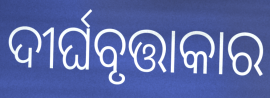
ଦୀର୍ଘବୃତ୍ତାକାର